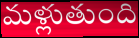
మళ్లుతుంది